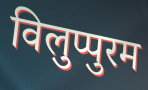
विलुप्पुरम